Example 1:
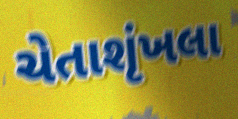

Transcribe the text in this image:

ચેતાશૃંખલા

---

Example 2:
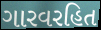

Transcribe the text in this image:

ગારવરહિત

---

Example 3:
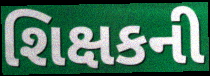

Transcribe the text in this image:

શિક્ષકની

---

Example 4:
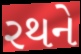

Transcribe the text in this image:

રથને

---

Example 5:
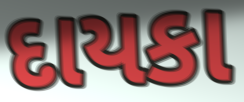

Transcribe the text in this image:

દાયકા